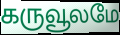
கருவூலமே